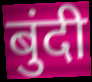
बुंदी